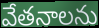
వేతనాలను